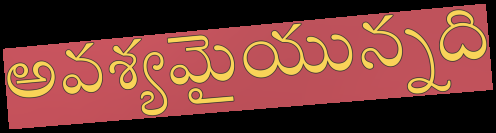
అవశ్యమైయున్నది